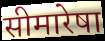
सीमारेषा